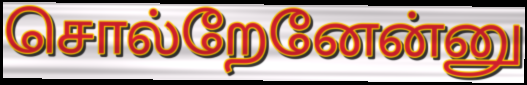
சொல்றேனேன்னு